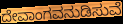
ದೇವಾಂಗವನುಡಿಸುವೆ